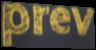
prev